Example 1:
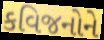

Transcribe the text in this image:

કવિજનોને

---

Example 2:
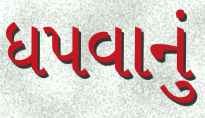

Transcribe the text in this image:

ધપવાનું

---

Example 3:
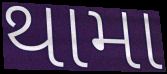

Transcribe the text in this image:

થામા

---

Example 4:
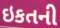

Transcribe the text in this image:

ઇકતની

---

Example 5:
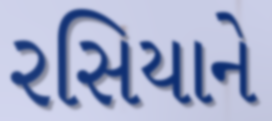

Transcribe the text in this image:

રસિયાને